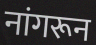
नांगरून